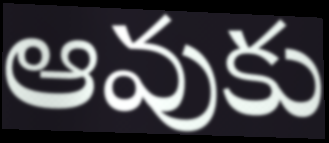
ఆవుకు